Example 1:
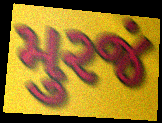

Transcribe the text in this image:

મુરજં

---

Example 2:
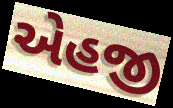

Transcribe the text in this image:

એહજી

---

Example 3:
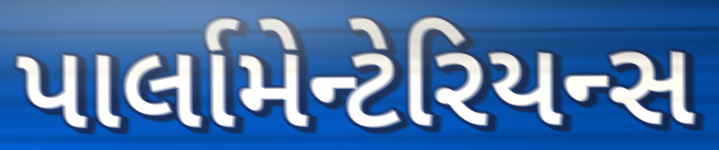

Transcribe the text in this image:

પાર્લામેન્ટેરિયન્સ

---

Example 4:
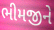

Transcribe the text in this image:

ભીમજીને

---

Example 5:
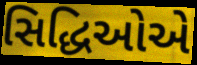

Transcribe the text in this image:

સિદ્ધિઓએ